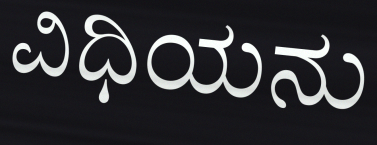
ವಿಧಿಯನು